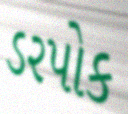
ડરપોક